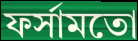
ফর্সামতো